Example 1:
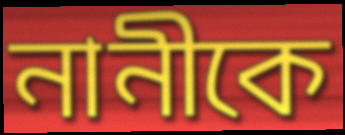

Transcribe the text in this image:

নানীকে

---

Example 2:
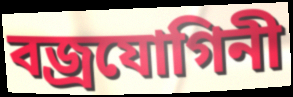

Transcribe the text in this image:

বজ্রযোগিনী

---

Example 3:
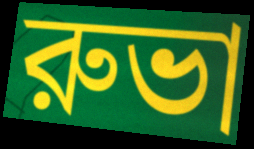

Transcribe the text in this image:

রুভা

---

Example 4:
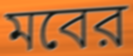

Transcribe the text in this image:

মবের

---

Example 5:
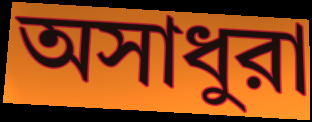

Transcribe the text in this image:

অসাধুরা